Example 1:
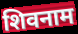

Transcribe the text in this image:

शिवनाम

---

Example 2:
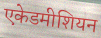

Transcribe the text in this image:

एकेडमीशियन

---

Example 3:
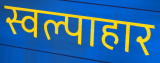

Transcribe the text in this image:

स्‍वल्‍पाहार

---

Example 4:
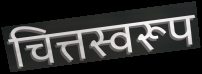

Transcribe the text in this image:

चित्तस्वरूप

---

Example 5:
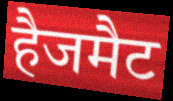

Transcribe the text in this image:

हैजमैट